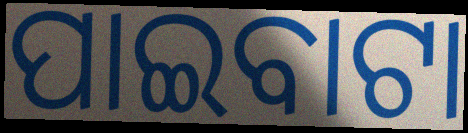
ପାଇବାଟା